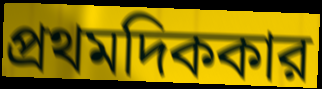
প্রথমদিককার